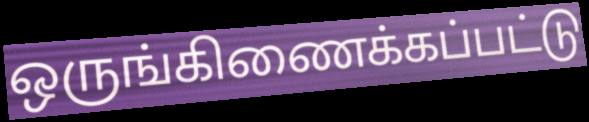
ஒருங்கிணைக்கப்பட்டு